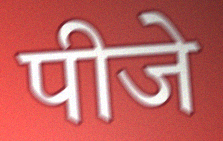
पीजे